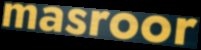
masroor